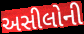
અસીલોની